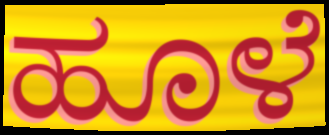
ಹೂಳೆ